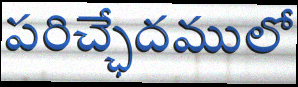
పరిచ్ఛేదములో